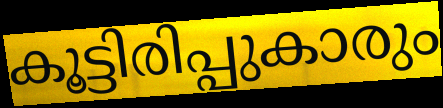
കൂട്ടിരിപ്പുകാരും